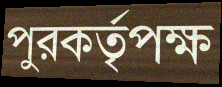
পুরকর্তৃপক্ষ